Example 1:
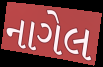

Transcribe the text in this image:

નાગેલ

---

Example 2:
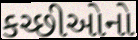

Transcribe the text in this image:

કચ્છીઓનો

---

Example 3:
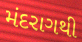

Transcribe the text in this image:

મંદરાગથી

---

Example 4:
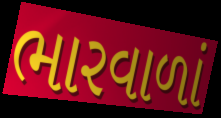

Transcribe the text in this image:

ભારવાળાં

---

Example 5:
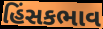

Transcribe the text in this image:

હિંસકભાવ